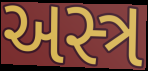
અસ્ત્ર